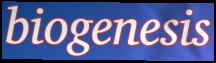
biogenesis